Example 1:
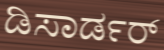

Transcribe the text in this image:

ಡಿಸಾರ್ಡರ್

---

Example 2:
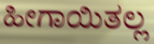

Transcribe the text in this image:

ಹೀಗಾಯಿತಲ್ಲ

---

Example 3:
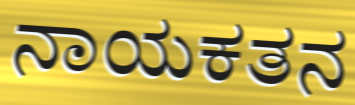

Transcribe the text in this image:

ನಾಯಕತನ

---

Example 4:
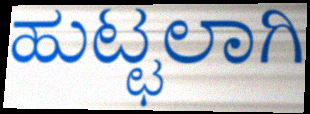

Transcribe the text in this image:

ಹುಟ್ಟಲಾಗಿ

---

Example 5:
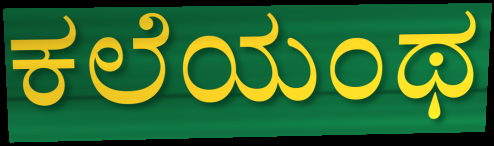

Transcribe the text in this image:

ಕಲೆಯಂಥ